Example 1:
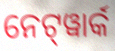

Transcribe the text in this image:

ନେଟ୍‌ୱାର୍କ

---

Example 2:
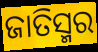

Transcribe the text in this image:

ଜାତିସ୍ମର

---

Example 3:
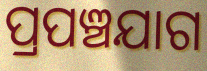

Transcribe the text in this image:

ପ୍ରପଞ୍ଚଯାଗ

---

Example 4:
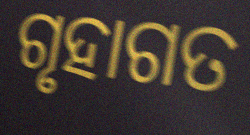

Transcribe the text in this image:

ଗୃହାଗତ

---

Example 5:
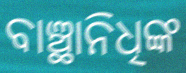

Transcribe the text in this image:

ବାଞ୍ଛାନିଧିଙ୍କ